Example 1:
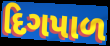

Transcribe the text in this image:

દિગપાળ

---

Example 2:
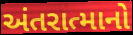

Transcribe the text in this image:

અંતરાત્માનો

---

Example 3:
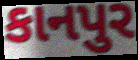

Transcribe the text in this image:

કાનપુર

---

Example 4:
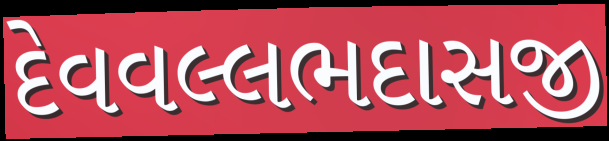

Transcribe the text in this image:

દેવવલ્લભદાસજી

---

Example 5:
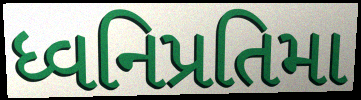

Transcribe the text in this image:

ધ્વનિપ્રતિમા